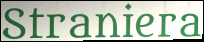
Straniera